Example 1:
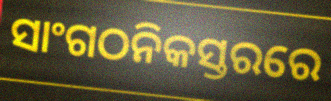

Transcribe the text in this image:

ସାଂଗଠନିକସ୍ତରରେ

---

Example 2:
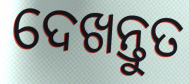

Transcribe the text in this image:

ଦେଖନ୍ତୁତ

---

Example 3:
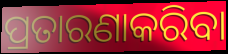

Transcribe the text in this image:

ପ୍ରତାରଣାକରିବା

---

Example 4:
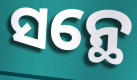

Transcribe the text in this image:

ସନ୍ଥେ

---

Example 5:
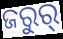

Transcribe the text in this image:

ଜରୁର୍